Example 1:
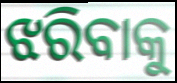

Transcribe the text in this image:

ଝରିବାକୁ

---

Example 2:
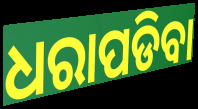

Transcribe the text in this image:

ଧରାପଡିବା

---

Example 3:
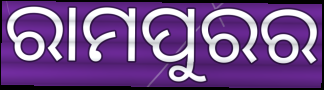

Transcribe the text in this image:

ରାମପୁରର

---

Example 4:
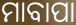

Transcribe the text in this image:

ମାବାପା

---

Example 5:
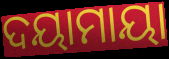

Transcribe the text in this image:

ଦୟାମାୟା